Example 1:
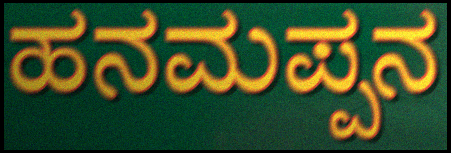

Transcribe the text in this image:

ಹನಮಪ್ಪನ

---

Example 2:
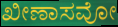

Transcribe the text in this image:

ಖೀಣಾಸವೋ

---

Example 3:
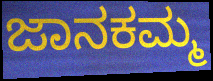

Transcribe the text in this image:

ಜಾನಕಮ್ಮ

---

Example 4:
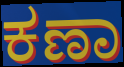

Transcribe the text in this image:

ಕಣಾ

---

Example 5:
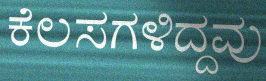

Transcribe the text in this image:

ಕೆಲಸಗಳಿದ್ದವು